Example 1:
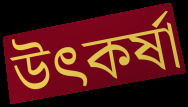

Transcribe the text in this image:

উৎকর্ষা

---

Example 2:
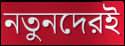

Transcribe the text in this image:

নতুনদেরই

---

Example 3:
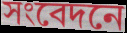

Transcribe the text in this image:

সংবেদনে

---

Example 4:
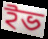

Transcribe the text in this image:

ইভ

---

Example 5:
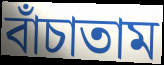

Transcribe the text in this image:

বাঁচাতাম